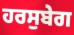
ਹਰਸੁਬੇਗ